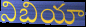
నిబియా